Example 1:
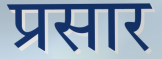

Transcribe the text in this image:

प्रसार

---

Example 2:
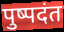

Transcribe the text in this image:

पुष्पदंत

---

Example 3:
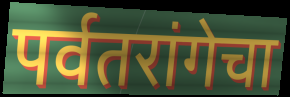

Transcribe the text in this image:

पर्वतरांगेचा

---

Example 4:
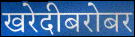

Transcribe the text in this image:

खरेदीबरोबर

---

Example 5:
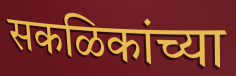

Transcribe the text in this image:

सकळिकांच्या